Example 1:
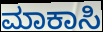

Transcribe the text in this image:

ಮಾಕಾಸಿ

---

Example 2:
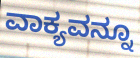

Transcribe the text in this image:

ವಾಕ್ಯವನ್ನೂ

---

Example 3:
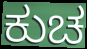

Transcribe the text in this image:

ಕುಚ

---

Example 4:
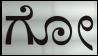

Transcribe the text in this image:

ಗೋ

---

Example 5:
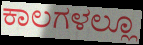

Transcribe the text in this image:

ಕಾಲಗಳಲ್ಲೂ